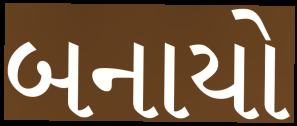
બનાયો